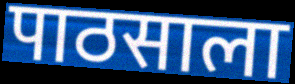
पाठसाला